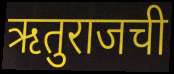
ऋतुराजची